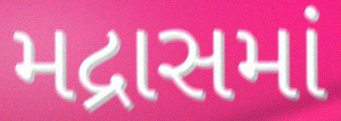
મદ્રાસમાં